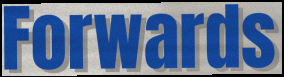
Forwards